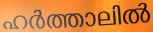
ഹർത്താലിൽ